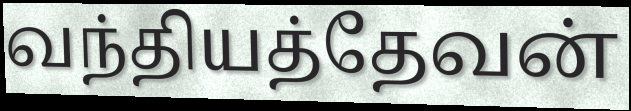
வந்தியத்தேவன்